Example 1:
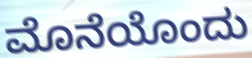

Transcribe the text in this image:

ಮೊನೆಯೊಂದು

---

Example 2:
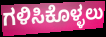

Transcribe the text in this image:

ಗಳಿಸಿಕೊಳ್ಳಲು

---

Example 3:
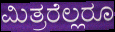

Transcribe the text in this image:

ಮಿತ್ರರೆಲ್ಲರೂ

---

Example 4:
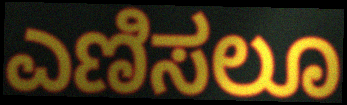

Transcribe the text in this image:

ಎಣಿಸಲೂ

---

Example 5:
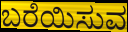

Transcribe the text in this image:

ಬರೆಯಿಸುವ